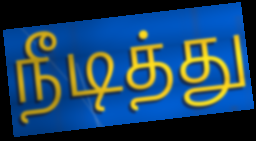
நீடித்து